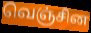
வெஞ்சின